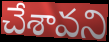
చేశావని